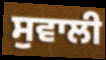
ਸੁਵਾਲੀ